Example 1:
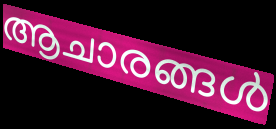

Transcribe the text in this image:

ആചാരങ്ങൾ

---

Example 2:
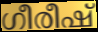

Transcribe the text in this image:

ഗീരീഷ്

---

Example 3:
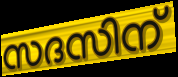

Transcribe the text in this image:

സദസിന്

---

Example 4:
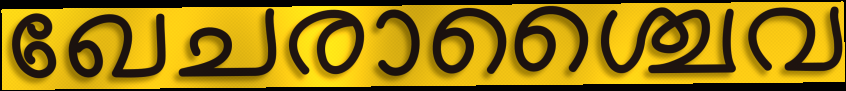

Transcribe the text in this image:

ഖേചരാശ്ചൈവ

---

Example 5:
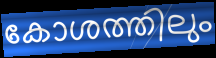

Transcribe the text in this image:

കോശത്തിലും